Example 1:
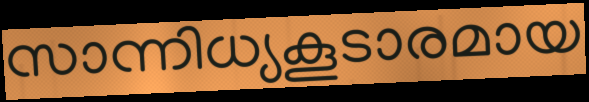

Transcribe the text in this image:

സാന്നിധ്യകൂടാരമായ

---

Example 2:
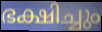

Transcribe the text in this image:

ഭക്ഷിച്ചും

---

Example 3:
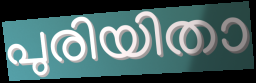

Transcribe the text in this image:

പുരിയിതാ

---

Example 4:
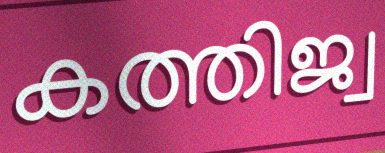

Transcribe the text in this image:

കത്തിജ്വ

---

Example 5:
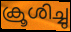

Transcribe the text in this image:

ക്രൂശിച്ചു